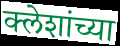
क्लेशांच्या